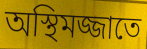
অস্থিমজ্জাতে